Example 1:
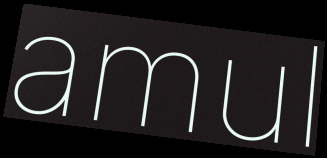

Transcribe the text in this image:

amul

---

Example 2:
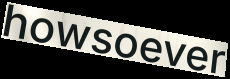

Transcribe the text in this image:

howsoever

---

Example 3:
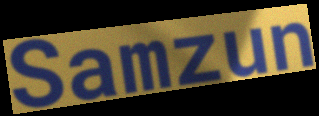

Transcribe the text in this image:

Samzun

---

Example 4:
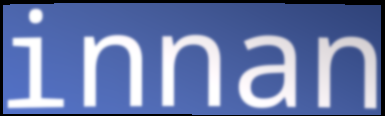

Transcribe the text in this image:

innan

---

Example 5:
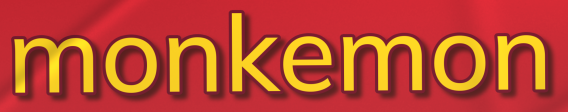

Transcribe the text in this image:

monkemon